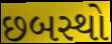
છબસ્થો